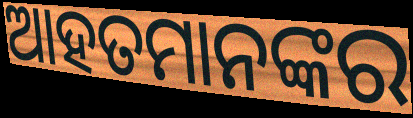
ଆହତମାନଙ୍କର